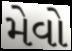
મેવો